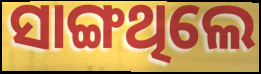
ସାଙ୍ଗଥିଲେ